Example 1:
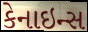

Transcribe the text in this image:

કેનાઇન્સ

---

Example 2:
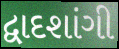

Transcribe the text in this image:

દ્વાદશાંગી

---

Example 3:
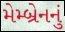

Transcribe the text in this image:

મેમ્બ્રેનનું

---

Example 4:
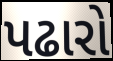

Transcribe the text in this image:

પઢારો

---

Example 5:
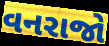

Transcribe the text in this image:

વનરાજો